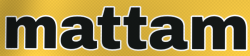
mattam